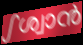
ഽശ്വാൻ